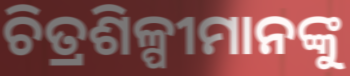
ଚିତ୍ରଶିଳ୍ପୀମାନଙ୍କୁ